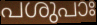
പശുപാഃ